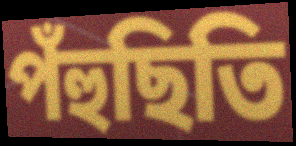
পঁহুছিতি